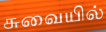
சுவையில்